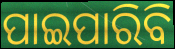
ପାଇପାରିବି